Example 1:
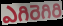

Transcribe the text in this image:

ఎగిరెగిరి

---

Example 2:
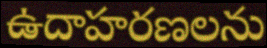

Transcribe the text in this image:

ఉదాహరణలను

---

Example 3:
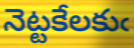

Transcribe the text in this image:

నెట్టకేలకుఁ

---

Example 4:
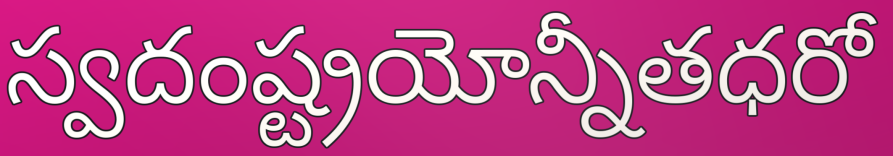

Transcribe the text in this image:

స్వదంష్ట్రయోన్నీతధరో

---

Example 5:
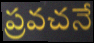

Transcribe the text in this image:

ప్రవచనే